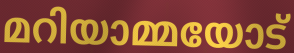
മറിയാമ്മയോട്